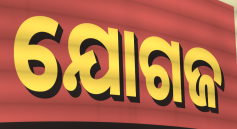
ଯୋଗଜ